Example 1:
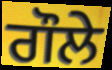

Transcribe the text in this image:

ਗੌਲੇ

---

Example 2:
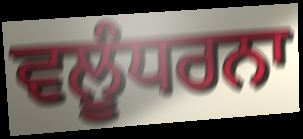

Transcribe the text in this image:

ਵਲੂੰਧਰਨਾ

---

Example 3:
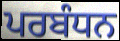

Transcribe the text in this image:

ਪਰਬੰਧਨ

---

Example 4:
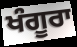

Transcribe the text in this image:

ਖੰਗੂਰਾ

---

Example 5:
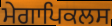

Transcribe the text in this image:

ਮੇਗਾਪਿਕਲਸ